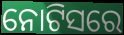
ନୋଟିସରେ